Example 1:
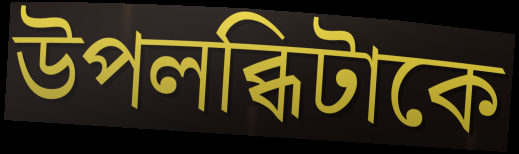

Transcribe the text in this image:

উপলব্ধিটাকে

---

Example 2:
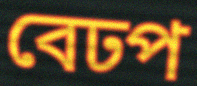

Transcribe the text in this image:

বেঢপ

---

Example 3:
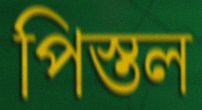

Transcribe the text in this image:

পিস্তল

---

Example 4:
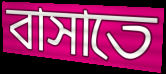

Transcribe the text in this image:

বাসাতে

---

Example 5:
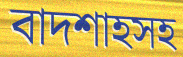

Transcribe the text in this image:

বাদশাহসহ